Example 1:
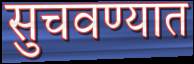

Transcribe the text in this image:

सुचवण्यात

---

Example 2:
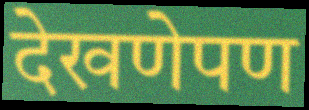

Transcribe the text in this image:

देखणेपण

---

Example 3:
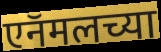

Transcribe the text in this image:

एनॅमलच्या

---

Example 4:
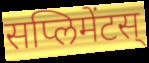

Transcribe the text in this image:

सप्लिमेंटस्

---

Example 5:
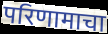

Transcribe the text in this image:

परिणामाचा